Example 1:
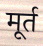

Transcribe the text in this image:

मूर्त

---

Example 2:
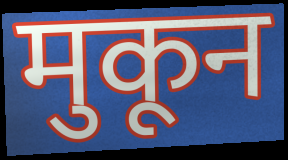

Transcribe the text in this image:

मुकून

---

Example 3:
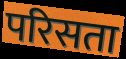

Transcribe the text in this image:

परिसता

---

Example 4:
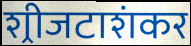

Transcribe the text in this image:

श्रीजटाशंकर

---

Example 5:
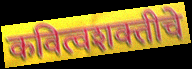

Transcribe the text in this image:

कवित्वशक्तीचे